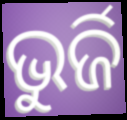
ଭୁର୍ଜି